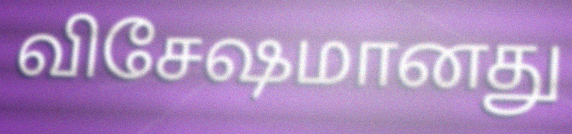
விசேஷமானது